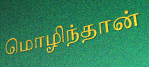
மொழிந்தான்